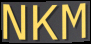
NKM